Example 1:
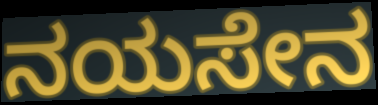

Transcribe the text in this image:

ನಯಸೇನ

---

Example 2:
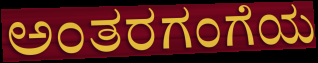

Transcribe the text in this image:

ಅಂತರಗಂಗೆಯ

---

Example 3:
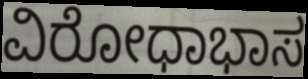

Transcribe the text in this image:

ವಿರೋಧಾಭಾಸ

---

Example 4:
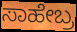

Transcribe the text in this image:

ಸಾಹೇಬ್ರ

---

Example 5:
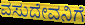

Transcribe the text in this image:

ವಸುದೇವನಿಗೆ